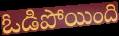
ఓడిపోయింది